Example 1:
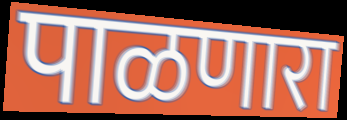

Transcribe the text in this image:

पाळणारा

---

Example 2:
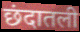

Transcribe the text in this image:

छंदातली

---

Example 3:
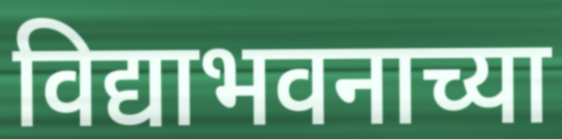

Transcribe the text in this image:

विद्याभवनाच्या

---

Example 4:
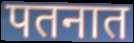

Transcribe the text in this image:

पतनात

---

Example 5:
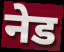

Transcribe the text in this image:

नेड